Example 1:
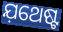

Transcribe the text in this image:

ଯ଼ଥେଷ୍ଟ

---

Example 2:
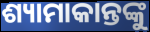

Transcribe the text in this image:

ଶ୍ୟାମାକାନ୍ତଙ୍କୁ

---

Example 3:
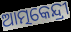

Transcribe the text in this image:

ଆତ୍ମକେନ୍ଦ୍ରୀ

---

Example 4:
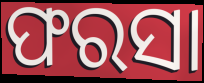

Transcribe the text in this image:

ଫରସା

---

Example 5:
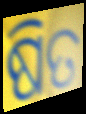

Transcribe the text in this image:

ଷିତ